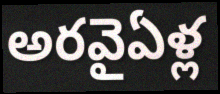
అరవైఏళ్ల